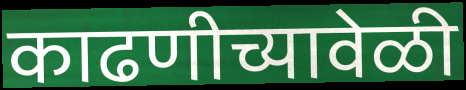
काढणीच्यावेळी